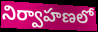
నిర్వాహణలో